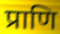
प्राणि